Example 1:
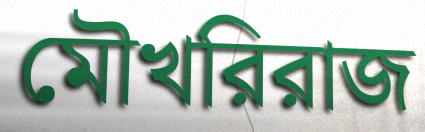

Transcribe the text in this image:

মৌখরিরাজ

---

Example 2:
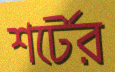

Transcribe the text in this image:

শর্টের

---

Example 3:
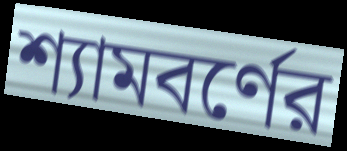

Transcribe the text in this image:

শ্যামবর্ণের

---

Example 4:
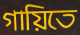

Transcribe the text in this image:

গায়িতে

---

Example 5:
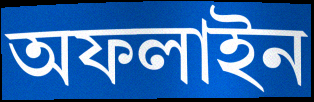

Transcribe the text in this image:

অফলাইন